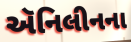
ઍનિલીનના